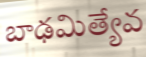
బాఢమిత్యేవ